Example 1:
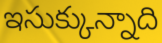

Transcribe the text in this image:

ఇసుక్కున్నాది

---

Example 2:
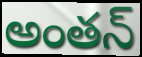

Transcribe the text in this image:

అంతన్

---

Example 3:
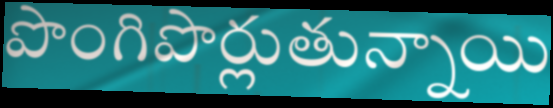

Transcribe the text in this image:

పొంగిపొర్లుతున్నాయి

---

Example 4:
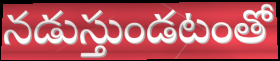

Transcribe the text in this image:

నడుస్తుండటంతో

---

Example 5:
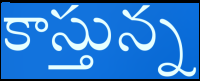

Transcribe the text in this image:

కాస్తున్న